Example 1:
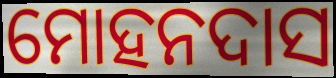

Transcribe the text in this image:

ମୋହନଦାସ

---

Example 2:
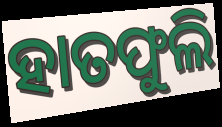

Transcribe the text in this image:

ହାତଫୁଲି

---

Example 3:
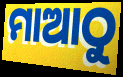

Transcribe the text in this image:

ମାଆଠୁ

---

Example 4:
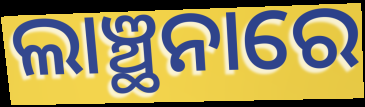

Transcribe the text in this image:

ଲାଞ୍ଛନାରେ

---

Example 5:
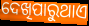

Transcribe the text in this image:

ଦେଖିପାରୁଥାଏ